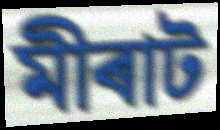
মীৰাট